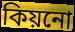
কিয়নো